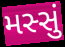
મસ્સું